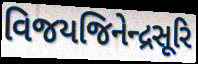
વિજયજિનેન્દ્રસૂરિ